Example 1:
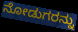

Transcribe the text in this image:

ನೋಡುಗರನ್ನು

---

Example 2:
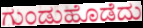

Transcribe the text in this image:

ಗುಂಡುಹೊಡೆದು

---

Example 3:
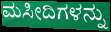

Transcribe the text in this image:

ಮಸೀದಿಗಳನ್ನು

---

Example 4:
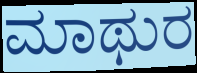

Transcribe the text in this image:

ಮಾಥುರ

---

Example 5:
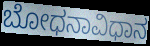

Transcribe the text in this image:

ಬೋಧನಾವಿಧಾನ